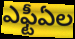
ఎఫ్టీఏల